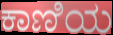
ಕಾಣಿಯ